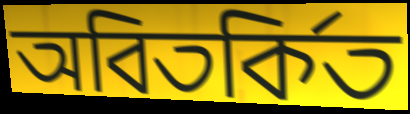
অবিতর্কিত